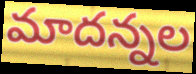
మాదన్నల